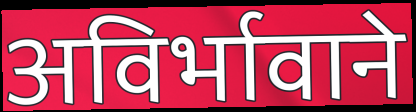
अविर्भावाने